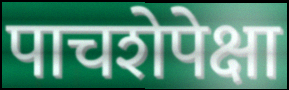
पाचशेपेक्षा